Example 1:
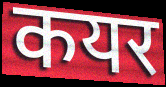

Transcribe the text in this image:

कयर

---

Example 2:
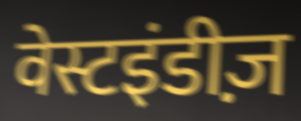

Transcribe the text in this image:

वेस्टइंडीज़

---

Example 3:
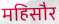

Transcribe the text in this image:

महिसौर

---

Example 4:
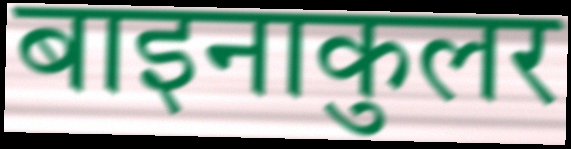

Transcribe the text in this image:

बाइनाकुलर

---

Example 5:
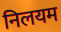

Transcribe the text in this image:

निलयम